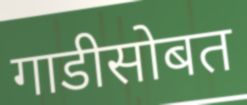
गाडीसोबत